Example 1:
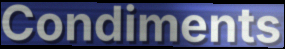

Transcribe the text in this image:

Condiments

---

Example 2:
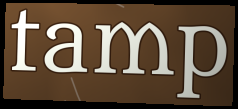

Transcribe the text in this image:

tamp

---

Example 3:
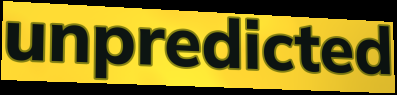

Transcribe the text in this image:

unpredicted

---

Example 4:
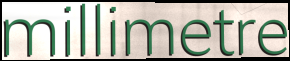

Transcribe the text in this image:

millimetre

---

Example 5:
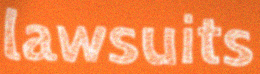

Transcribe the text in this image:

lawsuits